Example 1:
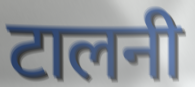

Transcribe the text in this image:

टालनी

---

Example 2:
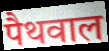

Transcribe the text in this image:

पैथवाल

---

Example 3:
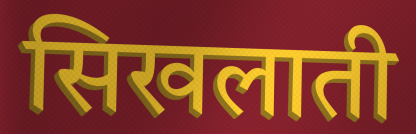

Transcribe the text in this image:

सिखलाती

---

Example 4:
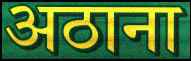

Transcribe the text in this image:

अठाना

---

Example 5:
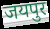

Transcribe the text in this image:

जयपुर